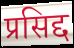
प्रसिद्द